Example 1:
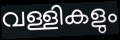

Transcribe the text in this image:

വള്ളികളും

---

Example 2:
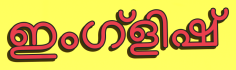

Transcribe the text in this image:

ഇംഗ്ളിഷ്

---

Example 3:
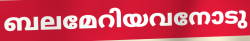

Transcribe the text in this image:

ബലമേറിയവനോടു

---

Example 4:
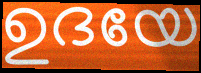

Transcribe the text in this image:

ഉദയേ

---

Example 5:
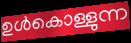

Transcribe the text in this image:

ഉൾകൊള്ളുന്ന